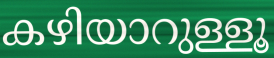
കഴിയാറുള്ളൂ